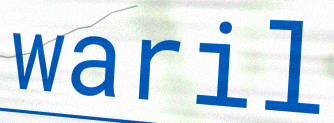
waril